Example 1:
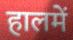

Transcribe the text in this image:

हालमें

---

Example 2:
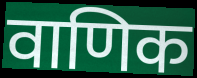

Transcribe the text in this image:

वाणिक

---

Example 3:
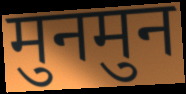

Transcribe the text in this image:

मुनमुन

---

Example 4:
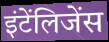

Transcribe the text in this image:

इंटेंलिजेंस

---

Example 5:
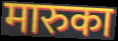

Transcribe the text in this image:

मारुका